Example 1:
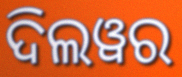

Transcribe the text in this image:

ଦିଲୱର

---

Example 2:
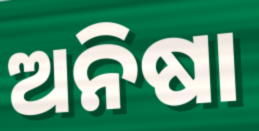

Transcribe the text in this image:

ଅନିଷା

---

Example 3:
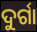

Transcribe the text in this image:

ଦୁର୍ଗା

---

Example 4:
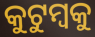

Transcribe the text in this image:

କୁଟୁମ୍ବକୁ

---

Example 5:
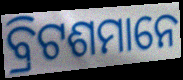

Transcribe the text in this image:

ବ୍ରିଟଶମାନେ